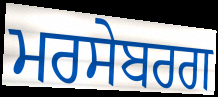
ਮਰਸੇਬਰਗ